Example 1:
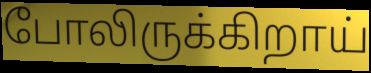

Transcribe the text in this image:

போலிருக்கிறாய்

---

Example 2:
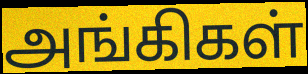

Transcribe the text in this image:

அங்கிகள்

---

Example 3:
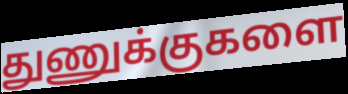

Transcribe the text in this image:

துணுக்குகளை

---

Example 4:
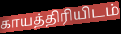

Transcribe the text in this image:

காயத்திரியிடம்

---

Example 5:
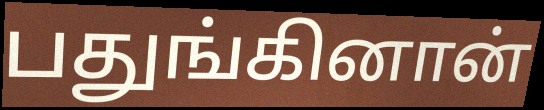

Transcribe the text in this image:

பதுங்கினான்